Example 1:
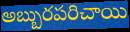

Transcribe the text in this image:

అబ్బురపరిచాయి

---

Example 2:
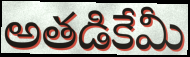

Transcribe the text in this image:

అతడికేమీ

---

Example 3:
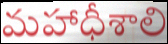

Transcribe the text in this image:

మహాధీశాలి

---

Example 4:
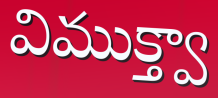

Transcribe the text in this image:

విముక్త్వా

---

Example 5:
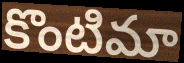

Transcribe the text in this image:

కొంటిమా